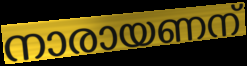
നാരായണന്